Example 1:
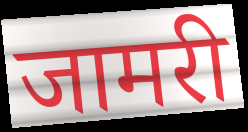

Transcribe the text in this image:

जामरी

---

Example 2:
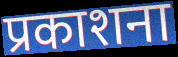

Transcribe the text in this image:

प्रकाशना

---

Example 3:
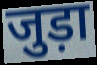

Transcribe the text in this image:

जुड़ा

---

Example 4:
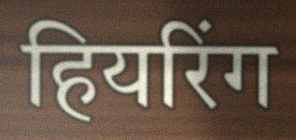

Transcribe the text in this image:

हियरिंग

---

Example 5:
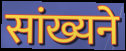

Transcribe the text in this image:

सांख्यने